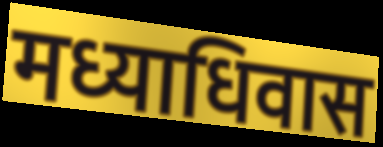
मध्याधिवास